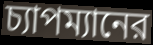
চ্যাপম্যানের